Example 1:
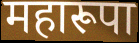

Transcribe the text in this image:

महारूपा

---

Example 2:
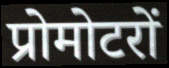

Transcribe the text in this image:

प्रोमोटरों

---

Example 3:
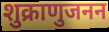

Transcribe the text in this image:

शुक्राणुजनन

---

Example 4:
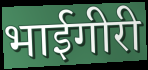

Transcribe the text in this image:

भाईगीरी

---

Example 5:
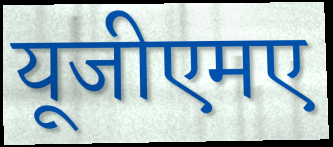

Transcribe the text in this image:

यूजीएमए